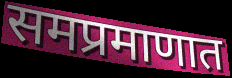
समप्रमाणात